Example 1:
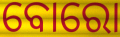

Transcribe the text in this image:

ବୋରୋ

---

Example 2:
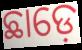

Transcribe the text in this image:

ଛାଡ଼େ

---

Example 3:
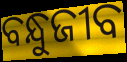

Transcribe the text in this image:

ବନ୍ଧୁଜୀବ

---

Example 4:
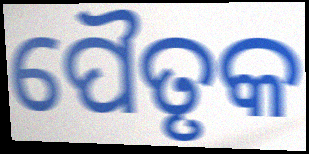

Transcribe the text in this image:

ପୈତୃକ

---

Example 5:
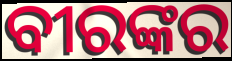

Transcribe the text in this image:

ବୀରଙ୍କର